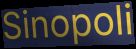
Sinopoli